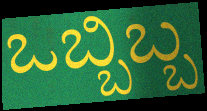
ಒಬ್ಬಿಬ್ಬ